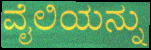
ವೈಲಿಯನ್ನು